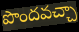
పొందవచ్చా